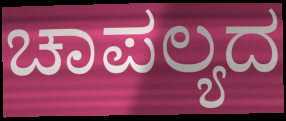
ಚಾಪಲ್ಯದ